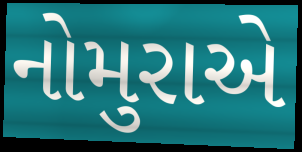
નોમુરાએ